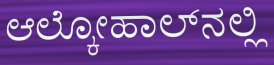
ಆಲ್ಕೋಹಾಲ್‌ನಲ್ಲಿ